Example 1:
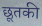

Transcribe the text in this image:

छूतकी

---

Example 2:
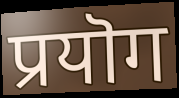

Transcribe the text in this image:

प्रयॊग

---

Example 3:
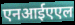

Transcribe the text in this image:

एनआईएएल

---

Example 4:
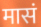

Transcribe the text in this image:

मासं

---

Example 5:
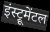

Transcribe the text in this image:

इंस्ट्रूमेंटल